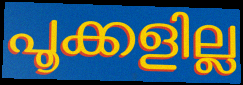
പൂക്കളില്ല